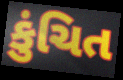
કુંચિત